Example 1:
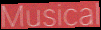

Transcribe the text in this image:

Musical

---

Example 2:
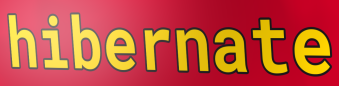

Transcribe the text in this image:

hibernate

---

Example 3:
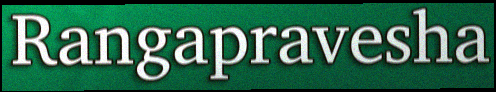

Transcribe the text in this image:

Rangapravesha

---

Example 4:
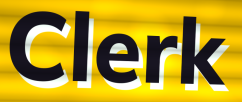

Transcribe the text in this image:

Clerk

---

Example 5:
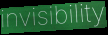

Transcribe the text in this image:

invisibility